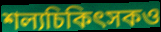
শল্যচিকিৎসকও